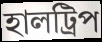
হালট্রিপ